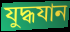
যুদ্ধযান